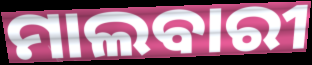
ମାଲବାରୀ